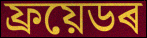
ফ্ৰয়েডৰ